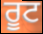
ਰੂਟ